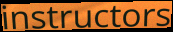
instructors